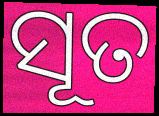
ସୂତ